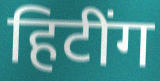
हिटींग